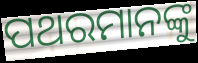
ପଥରମାନଙ୍କୁ